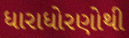
ધારાધોરણોથી